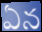
ఏన